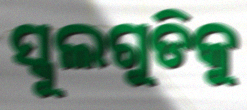
ସ୍କୁଲଗୁଡିକୁ